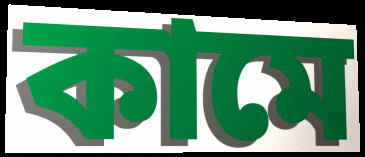
কামে